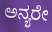
ಅನ್ಯರೇ